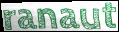
ranaut